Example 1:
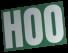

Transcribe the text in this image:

HOO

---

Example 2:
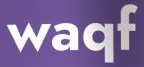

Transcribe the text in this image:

waqf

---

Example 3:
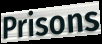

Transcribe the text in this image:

Prisons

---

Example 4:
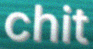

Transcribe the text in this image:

chit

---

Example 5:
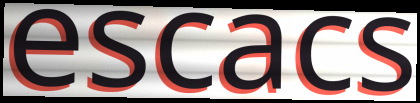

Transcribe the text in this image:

escacs